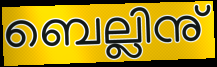
ബെല്ലിനു്